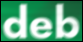
deb